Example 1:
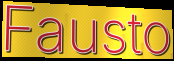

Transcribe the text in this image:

Fausto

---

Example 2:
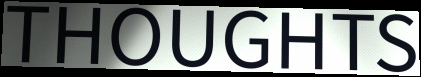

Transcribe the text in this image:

THOUGHTS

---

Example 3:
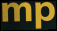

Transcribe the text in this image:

mp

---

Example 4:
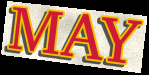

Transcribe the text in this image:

MAY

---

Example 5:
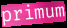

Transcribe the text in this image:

primum